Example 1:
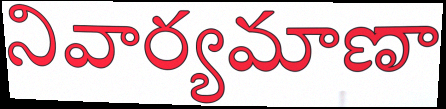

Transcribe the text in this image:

నివార్యమాణా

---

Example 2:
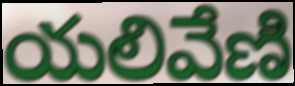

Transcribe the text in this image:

యలివేణి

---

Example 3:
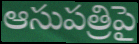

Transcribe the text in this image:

ఆసుపత్రిపై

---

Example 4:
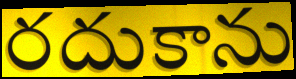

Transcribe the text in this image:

రదుకాను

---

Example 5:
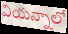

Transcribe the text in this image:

వియన్నాలో